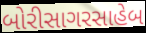
બોરીસાગરસાહેબ